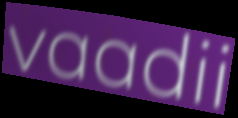
vaadii